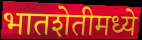
भातशेतीमध्ये